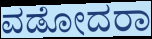
ವಡೋದರಾ